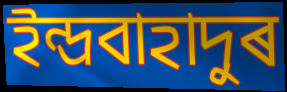
ইন্দ্ৰবাহাদুৰ